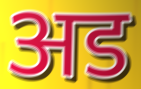
अड